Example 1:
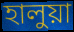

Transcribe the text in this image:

হালুয়া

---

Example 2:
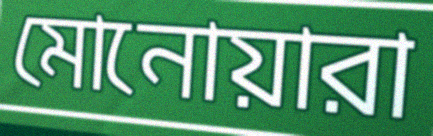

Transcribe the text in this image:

মোনোয়ারা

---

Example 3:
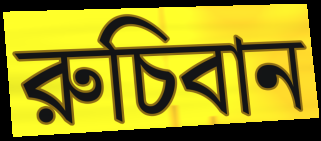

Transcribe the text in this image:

রুচিবান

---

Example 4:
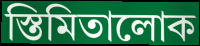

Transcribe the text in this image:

স্তিমিতালোক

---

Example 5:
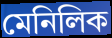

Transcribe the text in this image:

মেনিলিক